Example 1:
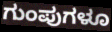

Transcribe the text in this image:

ಗುಂಪುಗಳೂ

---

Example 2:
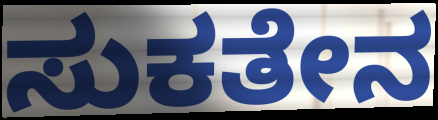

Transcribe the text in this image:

ಸುಕತೇನ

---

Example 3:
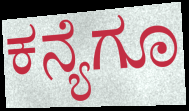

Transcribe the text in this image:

ಕನ್ಯೆಗೂ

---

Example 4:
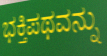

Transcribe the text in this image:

ಭಕ್ತಿಪಥವನ್ನು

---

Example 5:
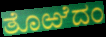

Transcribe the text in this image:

ತೊಱೆದಂ